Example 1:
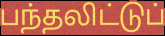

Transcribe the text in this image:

பந்தலிட்டுப்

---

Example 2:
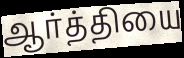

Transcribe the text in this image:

ஆர்த்தியை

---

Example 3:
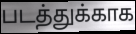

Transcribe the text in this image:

படத்துக்காக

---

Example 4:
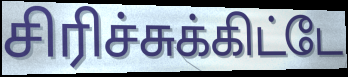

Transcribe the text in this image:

சிரிச்சுக்கிட்டே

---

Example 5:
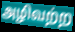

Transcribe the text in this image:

அழிவற்ற